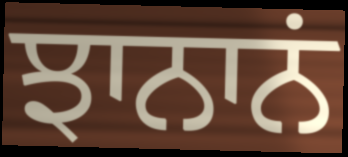
ਝਾਨਾਨਂ